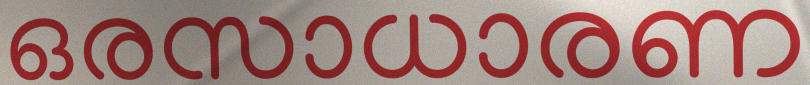
ഒരസാധാരണ